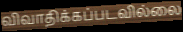
விவாதிக்கப்படவில்லை